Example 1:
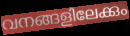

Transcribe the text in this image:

വനങ്ങളിലേക്കും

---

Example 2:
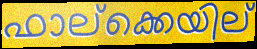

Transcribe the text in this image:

ഫാല്ക്കെയില്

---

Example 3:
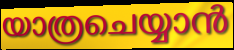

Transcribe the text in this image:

യാത്രചെയ്യാൻ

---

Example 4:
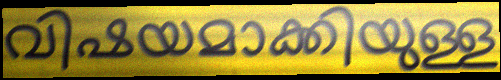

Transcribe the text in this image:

വിഷയമാക്കിയുള്ള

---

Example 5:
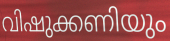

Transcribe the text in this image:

വിഷുക്കണിയും